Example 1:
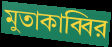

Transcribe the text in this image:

মুতাকাব্বির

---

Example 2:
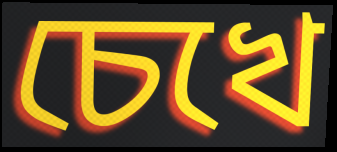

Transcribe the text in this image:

চেখে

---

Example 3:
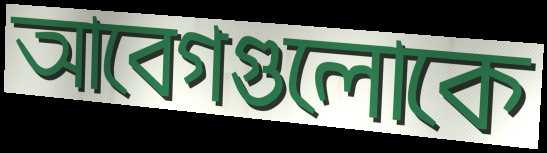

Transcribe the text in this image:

আবেগগুলোকে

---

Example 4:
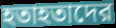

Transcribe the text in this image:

হতাহতাদের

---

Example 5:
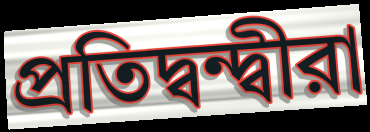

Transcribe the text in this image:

প্রতিদ্বন্দ্বীরা